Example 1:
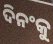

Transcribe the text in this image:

ଦିନଂକୁ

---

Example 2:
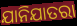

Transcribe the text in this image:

ଯାନିଯାତରା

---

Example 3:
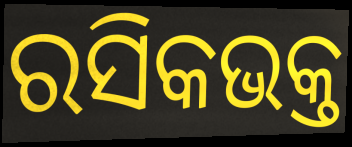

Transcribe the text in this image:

ରସିକଭକ୍ତ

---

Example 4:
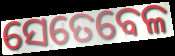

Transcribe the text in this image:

ସେତେବେଳ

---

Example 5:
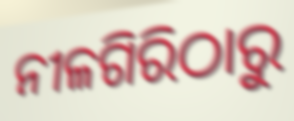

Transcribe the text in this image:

ନୀଳଗିରିଠାରୁ